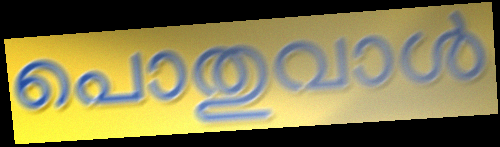
പൊതുവാൾ